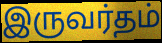
இருவர்தம்